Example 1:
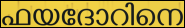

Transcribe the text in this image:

ഫയദോറിനെ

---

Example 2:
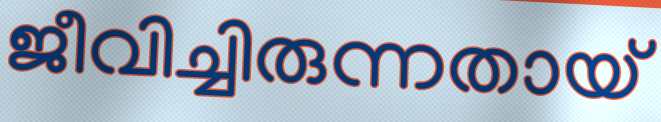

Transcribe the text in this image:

ജീവിച്ചിരുന്നതായ്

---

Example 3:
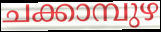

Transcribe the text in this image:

ചക്കാമ്പുഴ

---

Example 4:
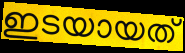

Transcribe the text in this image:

ഇടയായത്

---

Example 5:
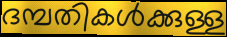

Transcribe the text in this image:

ദമ്പതികൾക്കുള്ള